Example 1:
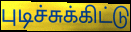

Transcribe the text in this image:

புடிச்சுக்கிட்டு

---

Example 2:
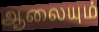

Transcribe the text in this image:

ஆலையும்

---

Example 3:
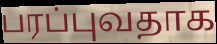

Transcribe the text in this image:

பரப்புவதாக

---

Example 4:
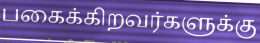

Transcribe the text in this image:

பகைக்கிறவர்களுக்கு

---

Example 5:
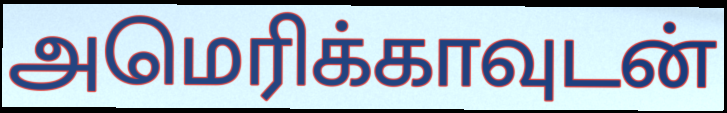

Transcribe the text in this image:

அமெரிக்காவுடன்